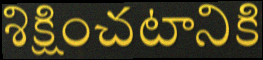
శిక్షించటానికి